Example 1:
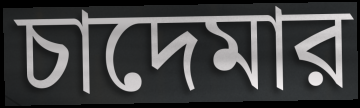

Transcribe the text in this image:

চাদেমার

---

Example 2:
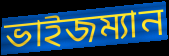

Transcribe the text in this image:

ভাইজম্যান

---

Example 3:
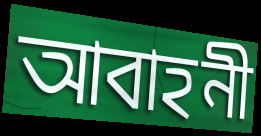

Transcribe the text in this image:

আবাহনী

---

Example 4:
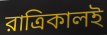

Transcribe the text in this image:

রাত্রিকালই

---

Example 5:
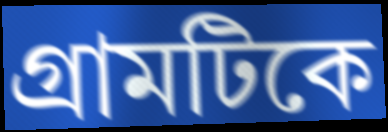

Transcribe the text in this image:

গ্রামটিকে